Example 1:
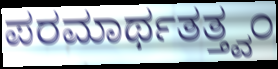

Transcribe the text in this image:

ಪರಮಾರ್ಥತತ್ತ್ವಂ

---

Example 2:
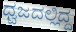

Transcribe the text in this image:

ಧ್ವಜದಲ್ಲಿದ್ದ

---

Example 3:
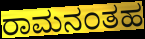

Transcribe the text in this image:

ರಾಮನಂತಹ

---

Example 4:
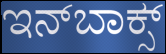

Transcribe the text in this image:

ಇನ್‍ಬಾಕ್ಸ್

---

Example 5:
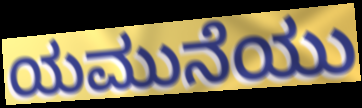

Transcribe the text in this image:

ಯಮುನೆಯು